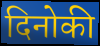
दिनोकी